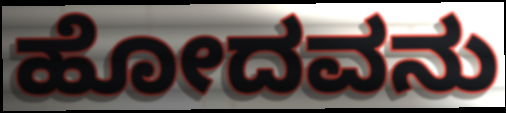
ಹೋದವನು